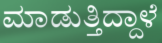
ಮಾಡುತ್ತಿದ್ದಾಳೆ